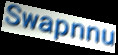
Swapnnu